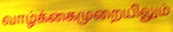
வாழ்க்கைமுறையிலும்